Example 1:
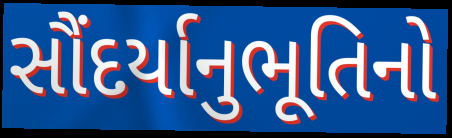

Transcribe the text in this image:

સૌંદર્યાનુભૂતિનો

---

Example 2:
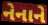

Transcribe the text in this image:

નેનાને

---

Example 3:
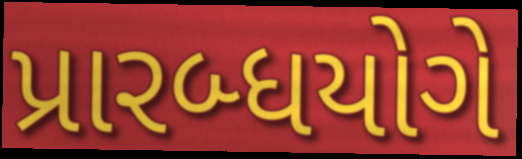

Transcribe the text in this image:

પ્રારબ્ધયોગે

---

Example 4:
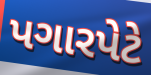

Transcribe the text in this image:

પગારપેટે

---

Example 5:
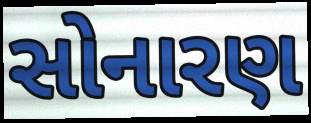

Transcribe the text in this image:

સોનારણ